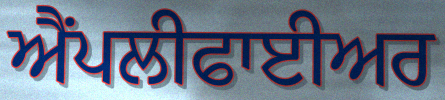
ਐੰਪਲੀਫਾਈਅਰ